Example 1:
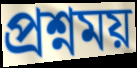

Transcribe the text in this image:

প্রশ্নময়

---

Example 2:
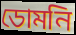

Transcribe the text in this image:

ডোমনি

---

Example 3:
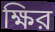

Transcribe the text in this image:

ক্ষির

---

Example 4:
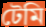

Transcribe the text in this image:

টেমি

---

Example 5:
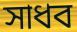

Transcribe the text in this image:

সাধব